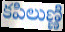
కపిలుణ్ణి